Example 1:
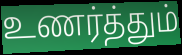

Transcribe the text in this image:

உணர்த்தும்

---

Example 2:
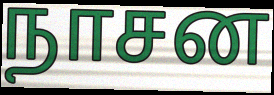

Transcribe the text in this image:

நாசன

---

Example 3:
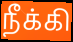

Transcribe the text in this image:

நீக்கி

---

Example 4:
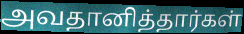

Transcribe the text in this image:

அவதானித்தார்கள்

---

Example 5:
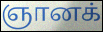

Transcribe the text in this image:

ஞானக்